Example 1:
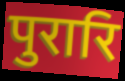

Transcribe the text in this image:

पुरारि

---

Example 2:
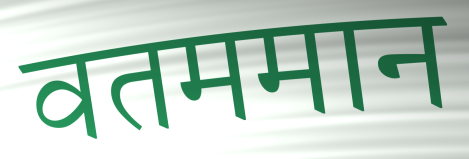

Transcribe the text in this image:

वतममान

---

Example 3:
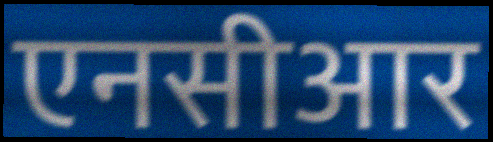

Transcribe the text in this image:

एनसीआर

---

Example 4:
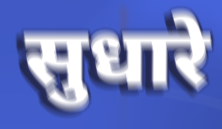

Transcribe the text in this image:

सुधारे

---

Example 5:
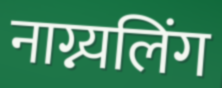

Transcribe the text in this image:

नाग्न्यलिंग